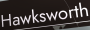
Hawksworth